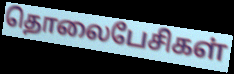
தொலைபேசிகள்